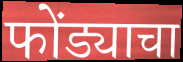
फोंड्याचा